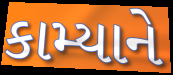
કામ્યાને